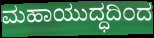
ಮಹಾಯುದ್ಧದಿಂದ